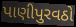
પાણીપુરવઠો